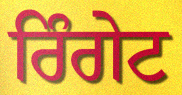
ਰਿੰਗੇਟ